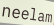
neelam